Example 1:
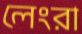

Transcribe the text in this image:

লেংরা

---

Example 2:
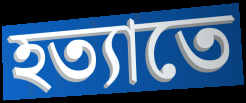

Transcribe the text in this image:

হত্যাতে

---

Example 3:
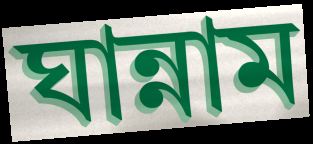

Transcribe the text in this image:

ঘান্নাম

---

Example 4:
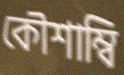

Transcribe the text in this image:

কৌশাম্বি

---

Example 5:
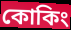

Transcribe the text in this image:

কোকিং